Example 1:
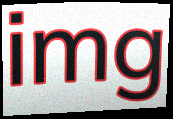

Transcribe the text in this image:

img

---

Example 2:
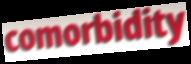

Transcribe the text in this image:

comorbidity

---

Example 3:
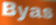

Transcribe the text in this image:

Byas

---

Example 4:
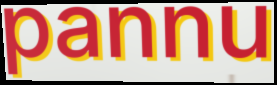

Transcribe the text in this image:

pannu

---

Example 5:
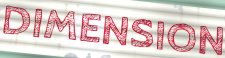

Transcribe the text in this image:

DIMENSION